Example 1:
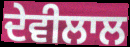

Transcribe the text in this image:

ਦੇਵੀਲਾਲ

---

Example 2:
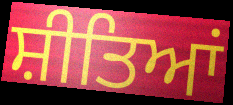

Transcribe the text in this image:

ਸ਼ੀਤਿਆਂ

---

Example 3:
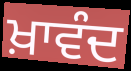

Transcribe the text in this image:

ਖ਼ਾਵੰਦ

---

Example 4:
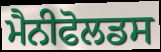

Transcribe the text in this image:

ਮੈਨੀਫੋਲਡਸ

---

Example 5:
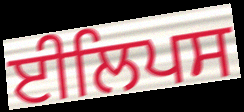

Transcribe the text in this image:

ਈਲਿਪਸ